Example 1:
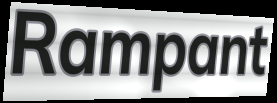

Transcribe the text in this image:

Rampant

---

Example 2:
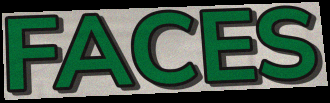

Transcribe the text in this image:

FACES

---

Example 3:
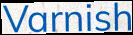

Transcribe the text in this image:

Varnish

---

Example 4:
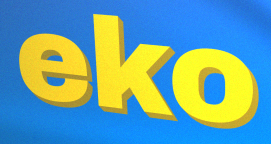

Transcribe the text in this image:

eko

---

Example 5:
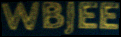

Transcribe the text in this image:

WBJEE